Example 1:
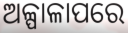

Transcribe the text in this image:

ଅଳ୍ପାଳାପରେ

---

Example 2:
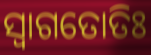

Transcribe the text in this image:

ସ୍ଵାଗତୋତିଃ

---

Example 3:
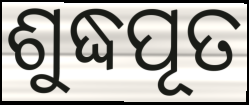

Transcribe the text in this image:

ଶୁଦ୍ଧପୂତ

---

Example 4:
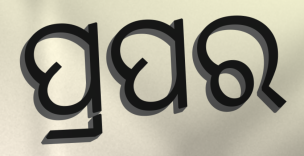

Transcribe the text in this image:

ପ୍ରପର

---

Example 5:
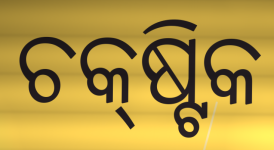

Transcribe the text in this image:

ଚକ୍‌ଷ୍ଟିକ